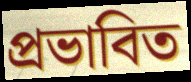
প্রভাবিত